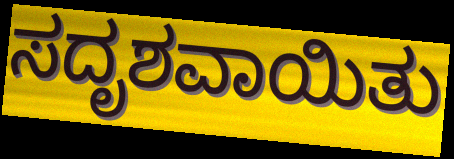
ಸದೃಶವಾಯಿತು